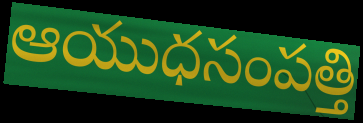
ఆయుధసంపత్తి